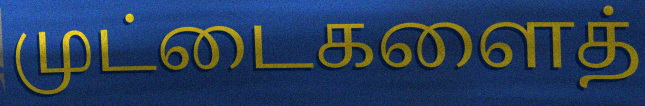
முட்டைகளைத்